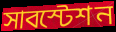
সাবস্টেশন